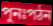
পুনঃপঠন